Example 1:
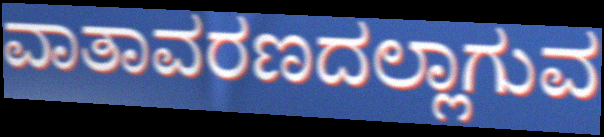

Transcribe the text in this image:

ವಾತಾವರಣದಲ್ಲಾಗುವ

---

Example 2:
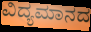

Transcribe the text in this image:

ವಿದ್ಯಮಾನದ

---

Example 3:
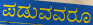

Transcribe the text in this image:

ಪಡುವವರೂ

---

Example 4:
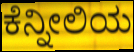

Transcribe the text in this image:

ಕೆನ್ನೀಲಿಯ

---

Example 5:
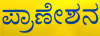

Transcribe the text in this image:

ಪ್ರಾಣೇಶನ